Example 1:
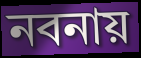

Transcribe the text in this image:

নবনায়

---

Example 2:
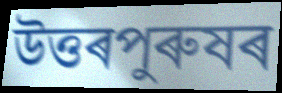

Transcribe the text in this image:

উত্তৰপুৰুষৰ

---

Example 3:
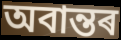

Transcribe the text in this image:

অবান্তৰ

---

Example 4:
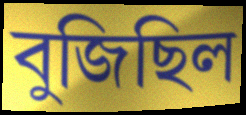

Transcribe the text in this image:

বুজিছিল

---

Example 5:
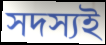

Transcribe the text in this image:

সদস্যই